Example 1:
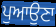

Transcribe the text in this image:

ਪੁਆਉਣਾ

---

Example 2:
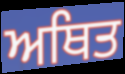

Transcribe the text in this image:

ਅਥਿਤ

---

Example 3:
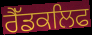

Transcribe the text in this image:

ਰੈੱਡਕਲਿਫ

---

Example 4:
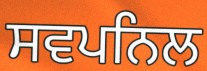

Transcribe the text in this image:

ਸਵਪਨਿਲ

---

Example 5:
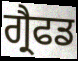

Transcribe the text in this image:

ਗ੍ਰੈਫਡ